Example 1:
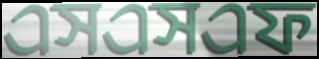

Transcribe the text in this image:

এসএসএফ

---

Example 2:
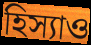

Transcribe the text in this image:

হিস্যাও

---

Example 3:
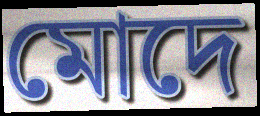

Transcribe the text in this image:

মোদে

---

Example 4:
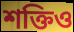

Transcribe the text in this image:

শক্তিও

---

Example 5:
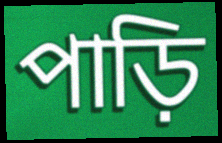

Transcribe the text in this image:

পাড়ি